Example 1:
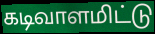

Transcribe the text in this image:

கடிவாளமிட்டு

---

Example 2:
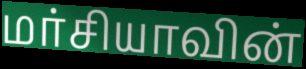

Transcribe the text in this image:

மர்சியாவின்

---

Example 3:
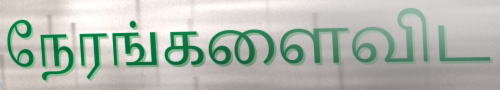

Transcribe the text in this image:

நேரங்களைவிட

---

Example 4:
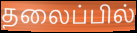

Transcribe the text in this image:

தலைப்பில்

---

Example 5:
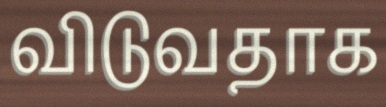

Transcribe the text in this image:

விடுவதாக